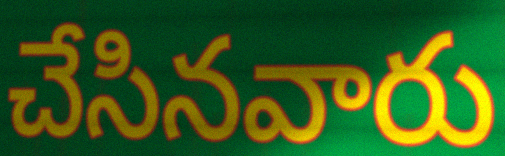
చేసినవారు